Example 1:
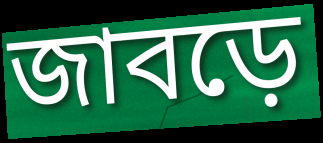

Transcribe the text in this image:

জাবড়ে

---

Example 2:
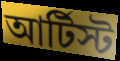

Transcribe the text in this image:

আর্টিস্ট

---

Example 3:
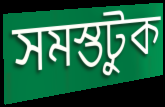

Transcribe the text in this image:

সমস্তটুক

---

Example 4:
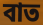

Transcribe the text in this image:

বাত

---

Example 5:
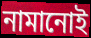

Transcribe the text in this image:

নামানোই